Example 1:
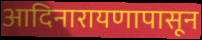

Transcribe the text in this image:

आदिनारायणापासून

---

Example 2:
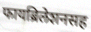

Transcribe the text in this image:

फायब्रिलेशनसह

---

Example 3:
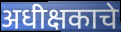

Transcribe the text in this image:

अधीक्षकाचे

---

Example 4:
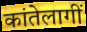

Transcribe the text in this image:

कांतेलागीं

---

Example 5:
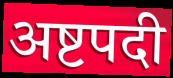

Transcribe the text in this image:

अष्टपदी